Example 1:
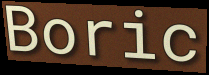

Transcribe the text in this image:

Boric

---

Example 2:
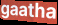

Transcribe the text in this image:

gaatha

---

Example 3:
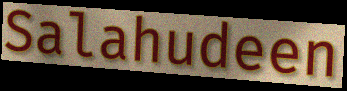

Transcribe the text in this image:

Salahudeen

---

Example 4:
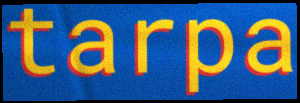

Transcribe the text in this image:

tarpa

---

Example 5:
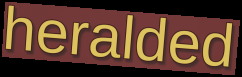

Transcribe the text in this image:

heralded